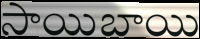
సాయిబాయి